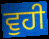
ਵੁਹੀ